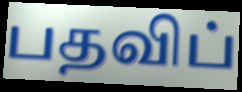
பதவிப்